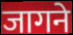
जागने